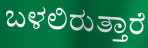
ಬಳಲಿರುತ್ತಾರೆ